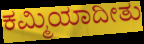
ಕಮ್ಮಿಯಾದೀತು